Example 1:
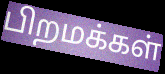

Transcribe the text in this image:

பிறமக்கள்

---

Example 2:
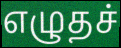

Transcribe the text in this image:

எழுதச்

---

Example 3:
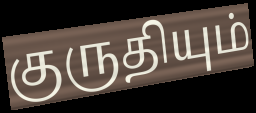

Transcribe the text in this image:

குருதியும்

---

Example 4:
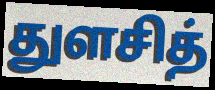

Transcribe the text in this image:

துளசித்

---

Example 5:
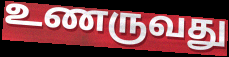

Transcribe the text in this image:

உணருவது